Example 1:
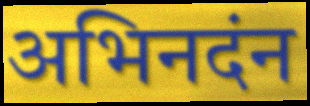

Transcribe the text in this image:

अभिनदंन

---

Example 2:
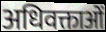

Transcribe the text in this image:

अधिवक्ताओं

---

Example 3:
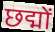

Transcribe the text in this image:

छद्मों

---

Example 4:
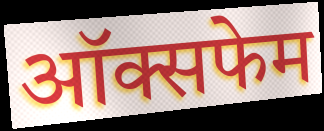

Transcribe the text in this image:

ऑक्सफेम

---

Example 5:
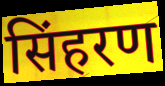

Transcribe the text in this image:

सिंहरण